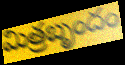
మిత్రబృందం